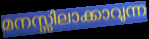
മനസ്സിലാക്കാവുന്ന